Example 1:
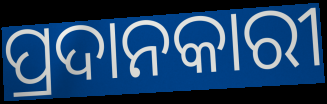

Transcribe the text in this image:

ପ୍ରଦାନକାରୀ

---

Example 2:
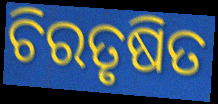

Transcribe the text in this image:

ଚିରତୃଷିତ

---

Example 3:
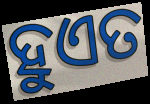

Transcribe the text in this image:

ହୁଏତ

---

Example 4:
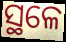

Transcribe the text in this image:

ସ୍ଥଳେ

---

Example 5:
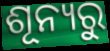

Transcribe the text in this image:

ଶୂନ୍ୟରୁ